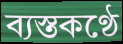
ব্যস্তকণ্ঠে